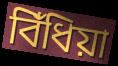
বিঁধিয়া